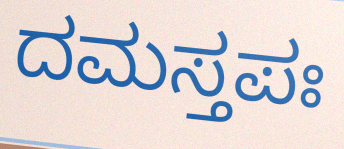
ದಮಸ್ತಪಃ